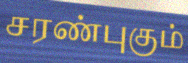
சரண்புகும்